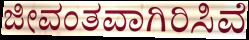
ಜೀವಂತವಾಗಿರಿಸಿವೆ